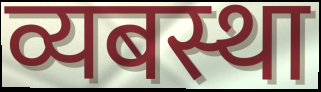
व्यबस्था